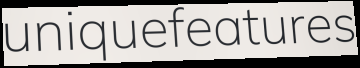
uniquefeatures